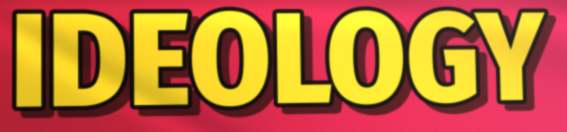
IDEOLOGY